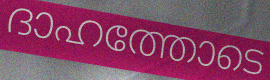
ദാഹത്തോടെ